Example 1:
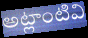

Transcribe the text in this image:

అట్లాంటివి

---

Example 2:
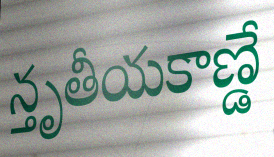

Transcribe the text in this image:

న్తృతీయకాణ్డే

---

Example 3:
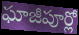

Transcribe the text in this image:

ఘాజీపూర్లో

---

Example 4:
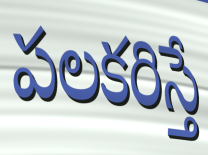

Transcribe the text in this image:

పలకరిస్తే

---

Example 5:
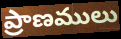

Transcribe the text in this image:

ప్రాణములు